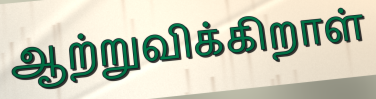
ஆற்றுவிக்கிறாள்